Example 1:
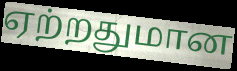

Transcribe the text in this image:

ஏற்றதுமான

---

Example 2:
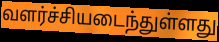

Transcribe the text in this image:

வளர்ச்சியடைந்துள்ளது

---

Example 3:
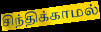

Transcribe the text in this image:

சிந்திக்காமல்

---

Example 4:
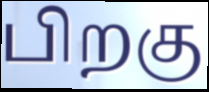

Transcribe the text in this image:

பிறகு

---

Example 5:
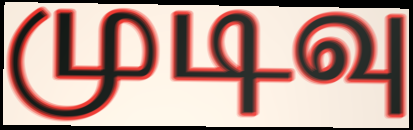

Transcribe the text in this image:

முடிவு